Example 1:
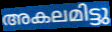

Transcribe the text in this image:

അകലമിട്ടു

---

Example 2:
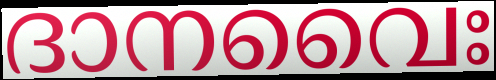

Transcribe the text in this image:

ദാനവൈഃ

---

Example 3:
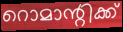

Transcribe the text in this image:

റൊമാന്റിക്ക്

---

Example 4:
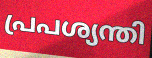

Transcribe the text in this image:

പ്രപശ്യന്തി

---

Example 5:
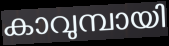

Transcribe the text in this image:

കാവുമ്പായി